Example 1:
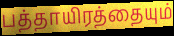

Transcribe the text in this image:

பத்தாயிரத்தையும்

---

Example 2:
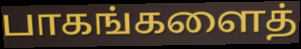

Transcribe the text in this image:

பாகங்களைத்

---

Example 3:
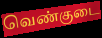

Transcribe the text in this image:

வெண்குடை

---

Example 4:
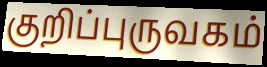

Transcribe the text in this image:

குறிப்புருவகம்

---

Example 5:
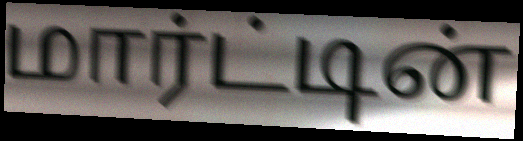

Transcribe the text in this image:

மார்ட்டின்